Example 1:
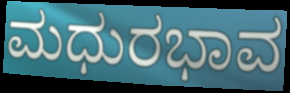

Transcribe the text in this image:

ಮಧುರಭಾವ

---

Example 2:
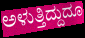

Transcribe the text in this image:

ಅಳುತ್ತಿದ್ದುದೂ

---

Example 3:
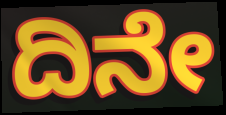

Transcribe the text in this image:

ದಿನೇ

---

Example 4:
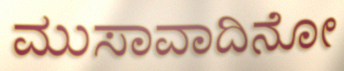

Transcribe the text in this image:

ಮುಸಾವಾದಿನೋ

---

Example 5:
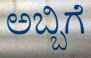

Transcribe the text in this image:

ಅಬ್ಬಿಗೆ